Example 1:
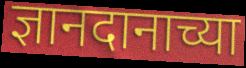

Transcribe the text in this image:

ज्ञानदानाच्या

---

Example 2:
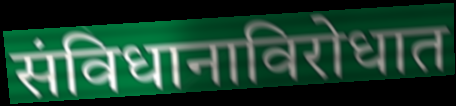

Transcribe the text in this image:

संविधानाविरोधात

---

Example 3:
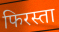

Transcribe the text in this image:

फिरस्ता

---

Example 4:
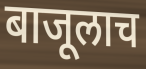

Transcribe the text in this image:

बाजूलाच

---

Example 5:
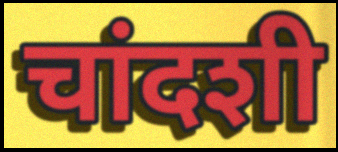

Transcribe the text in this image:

चांदशी